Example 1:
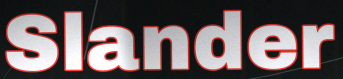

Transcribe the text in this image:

Slander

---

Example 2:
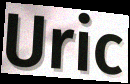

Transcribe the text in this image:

Uric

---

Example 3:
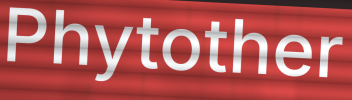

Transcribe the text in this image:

Phytother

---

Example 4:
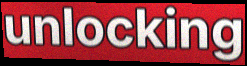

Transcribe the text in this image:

unlocking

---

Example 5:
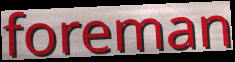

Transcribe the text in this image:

foreman